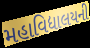
મહાવિદ્યાલયની